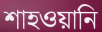
শাহওয়ানি